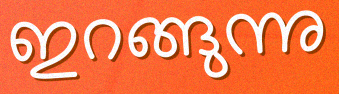
ഇറങ്ങുന്നു